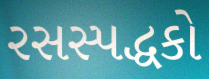
રસસ્પદ્ધકો